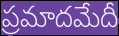
ప్రమాదమేదీ